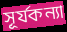
সূর্যকন্যা